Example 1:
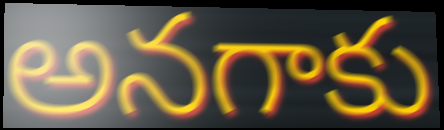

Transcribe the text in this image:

అనగాకు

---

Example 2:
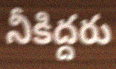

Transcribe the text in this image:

నీకిద్దరు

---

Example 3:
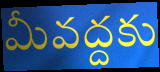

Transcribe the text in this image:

మీవద్దకు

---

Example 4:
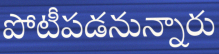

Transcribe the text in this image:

పోటీపడనున్నారు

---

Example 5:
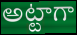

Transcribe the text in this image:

అట్టాగా